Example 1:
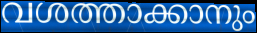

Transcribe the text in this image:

വശത്താക്കാനും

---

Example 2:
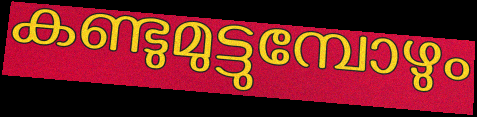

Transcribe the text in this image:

കണ്ടുമുട്ടുമ്പോഴും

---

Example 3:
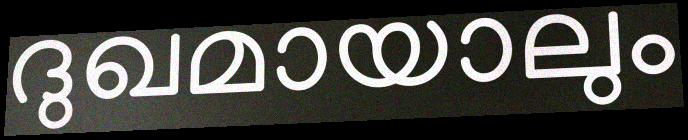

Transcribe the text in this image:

ദുഖമായാലും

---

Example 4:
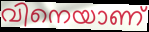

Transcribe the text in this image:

വിനെയാണ്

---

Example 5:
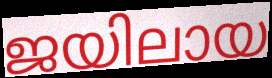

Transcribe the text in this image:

ജയിലായ